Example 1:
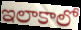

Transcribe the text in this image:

ఇలాకాలో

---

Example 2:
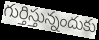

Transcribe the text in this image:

గుర్తిస్తున్నందుకు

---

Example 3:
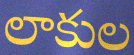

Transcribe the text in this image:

లాకుల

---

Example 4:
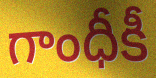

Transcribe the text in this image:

గాంధీకీ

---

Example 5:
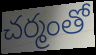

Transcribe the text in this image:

చర్మంతో